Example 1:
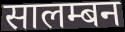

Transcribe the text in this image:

सालम्बन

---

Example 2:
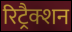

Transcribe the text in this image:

रिट्रैक्शन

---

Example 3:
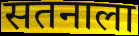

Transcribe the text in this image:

सतनाला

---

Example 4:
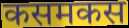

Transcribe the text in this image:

कसमकस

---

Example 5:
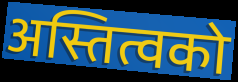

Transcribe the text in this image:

अस्तित्वको